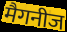
मैगनीज